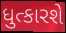
ધુત્કારશે